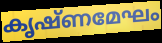
കൃഷ്ണമേഘം